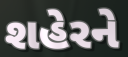
શહેરને